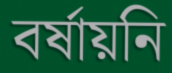
বর্ষায়নি